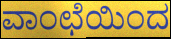
ವಾಂಛೆಯಿಂದ